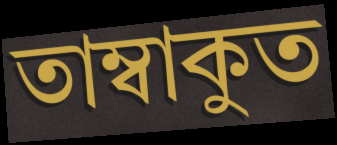
তাম্বাকুত